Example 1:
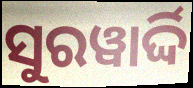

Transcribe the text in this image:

ସୁରୱାର୍ଦ୍ଦି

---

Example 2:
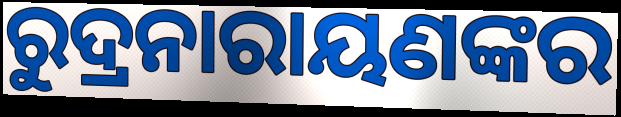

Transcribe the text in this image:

ରୁଦ୍ରନାରାୟଣଙ୍କର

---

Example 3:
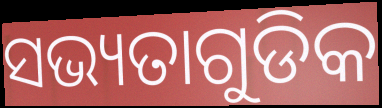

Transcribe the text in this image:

ସଭ୍ୟତାଗୁଡିକ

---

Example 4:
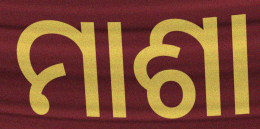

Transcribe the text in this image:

ମାଶା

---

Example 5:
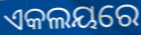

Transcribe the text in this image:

ଏକଲୟରେ